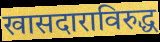
खासदाराविरुद्ध